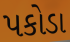
પકોડા